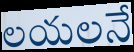
లయలనే